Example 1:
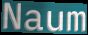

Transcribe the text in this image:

Naum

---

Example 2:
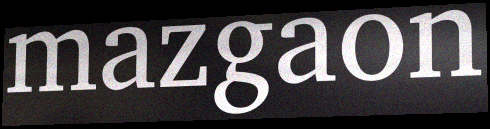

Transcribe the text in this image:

mazgaon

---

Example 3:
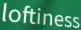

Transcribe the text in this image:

loftiness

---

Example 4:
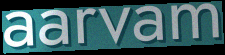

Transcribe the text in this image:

aarvam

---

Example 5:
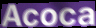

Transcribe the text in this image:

Acoca